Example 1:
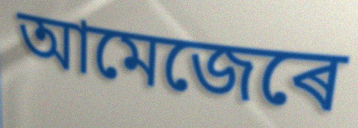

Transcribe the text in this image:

আমেজেৰে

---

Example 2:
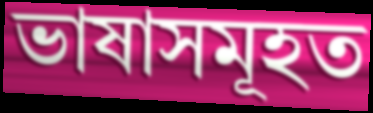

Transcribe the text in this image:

ভাষাসমূহত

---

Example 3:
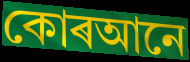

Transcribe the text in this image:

কোৰআনে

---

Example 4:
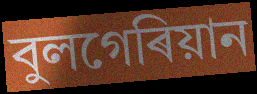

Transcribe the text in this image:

বুলগেৰিয়ান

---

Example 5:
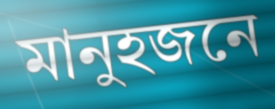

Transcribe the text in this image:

মানুহজনে